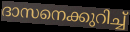
ദാസനെക്കുറിച്ച്